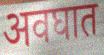
अवघात